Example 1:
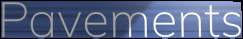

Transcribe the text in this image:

Pavements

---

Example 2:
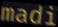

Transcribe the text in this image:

madi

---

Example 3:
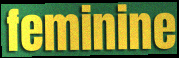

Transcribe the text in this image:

feminine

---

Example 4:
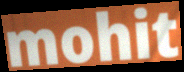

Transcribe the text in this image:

mohit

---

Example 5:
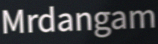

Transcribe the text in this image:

Mrdangam